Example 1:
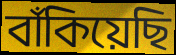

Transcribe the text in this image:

বাঁকিয়েছি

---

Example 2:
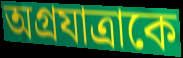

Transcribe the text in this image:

অগ্রযাত্রাকে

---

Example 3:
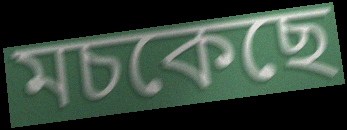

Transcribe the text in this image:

মচকেছে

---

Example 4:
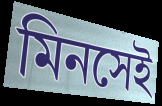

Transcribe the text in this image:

মিনসেই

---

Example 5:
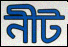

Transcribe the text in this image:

নীট